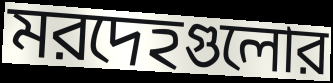
মরদেহগুলোর